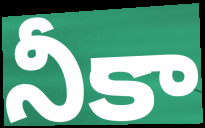
నీకా